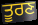
ਤੂਰਣ